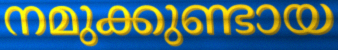
നമുക്കുണ്ടായ